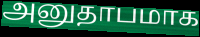
அனுதாபமாக